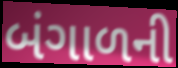
બંગાળની